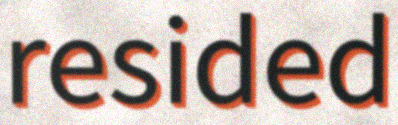
resided